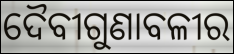
ଦୈବୀଗୁଣାବଳୀର